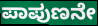
ಪಾಪುಣನೇ